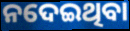
ନଦେଇଥିବା